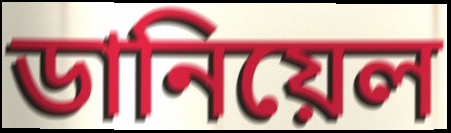
ডানিয়েল